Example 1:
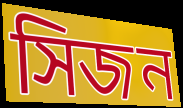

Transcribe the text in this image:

সিজন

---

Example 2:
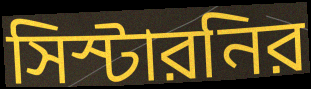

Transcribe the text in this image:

সিস্টারনির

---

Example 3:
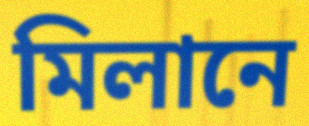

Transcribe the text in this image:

মিলানে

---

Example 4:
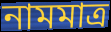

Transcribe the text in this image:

নামমাত্র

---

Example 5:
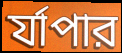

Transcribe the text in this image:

র্যাপার